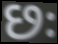
છઃ